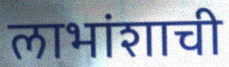
लाभांशाची